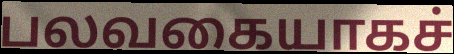
பலவகையாகச்